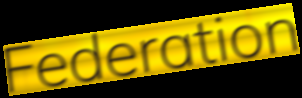
Federation